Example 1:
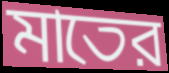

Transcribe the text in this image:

মাতের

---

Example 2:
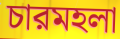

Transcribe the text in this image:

চারমহলা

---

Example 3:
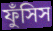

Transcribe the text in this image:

ফুঁসিস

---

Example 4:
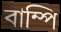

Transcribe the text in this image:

বাম্পি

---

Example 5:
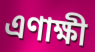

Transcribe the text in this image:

এণাক্ষী